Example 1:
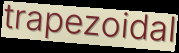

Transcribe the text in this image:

trapezoidal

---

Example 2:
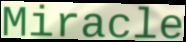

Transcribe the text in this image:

Miracle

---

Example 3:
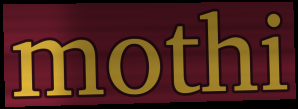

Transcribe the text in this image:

mothi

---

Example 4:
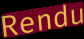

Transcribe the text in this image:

Rendu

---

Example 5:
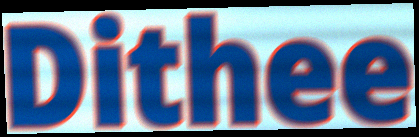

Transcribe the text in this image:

Dithee